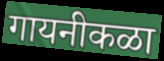
गायनीकळा